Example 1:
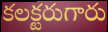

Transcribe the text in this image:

కలక్టరుగారు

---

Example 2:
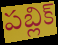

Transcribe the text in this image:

పబ్లిక్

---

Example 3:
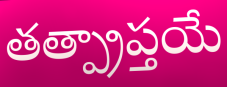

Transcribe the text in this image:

తత్ప్రాప్తయే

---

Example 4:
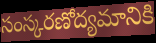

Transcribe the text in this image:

సంస్కరణోద్యమానికి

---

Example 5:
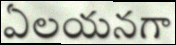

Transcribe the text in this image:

ఏలయనగా